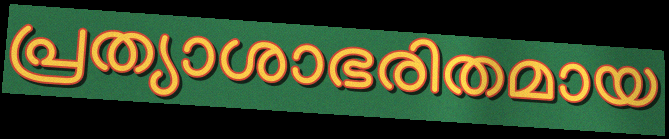
പ്രത്യാശാഭരിതമായ